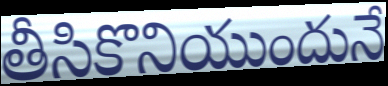
తీసికొనియుందునే